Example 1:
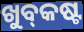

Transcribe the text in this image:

ଖୁବ୍‌କଷ୍ଟ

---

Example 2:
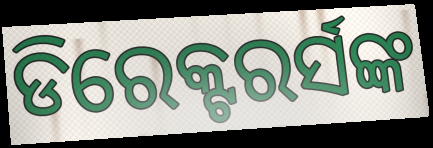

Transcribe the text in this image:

ଡିରେକ୍ଟରର୍ସଙ୍କ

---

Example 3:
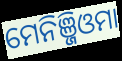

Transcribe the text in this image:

ମେନିଞ୍ଜିଓମା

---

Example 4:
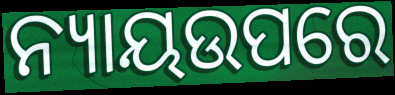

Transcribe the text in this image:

ନ୍ୟାୟଉପରେ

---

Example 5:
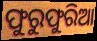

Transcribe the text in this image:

ଫୁରୁଫୁରିଆ